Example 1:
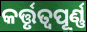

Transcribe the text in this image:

କର୍ତ୍ତୃତ୍ୱପୂର୍ଣ୍ଣ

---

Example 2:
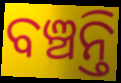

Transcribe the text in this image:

ବଞ୍ଚନ୍ତି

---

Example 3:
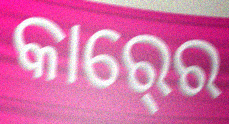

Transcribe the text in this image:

କାର୍‍ରେ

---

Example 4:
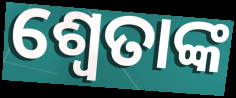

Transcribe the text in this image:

ଶ୍ଵେତାଙ୍କ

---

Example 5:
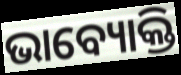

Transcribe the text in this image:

ଭାବ୍ୟୋକ୍ତି